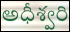
అధీశ్వరి